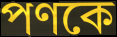
পণকে